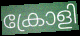
ക്രോളി